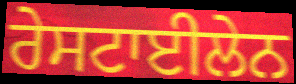
ਰੇਸਟਾਈਲੇਨ